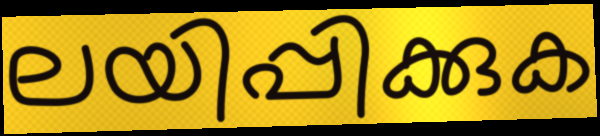
ലയിപ്പിക്കുക